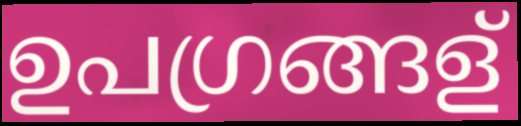
ഉപഗ്രങ്ങള്